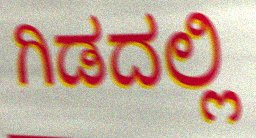
ಗಿಡದಲ್ಲಿ